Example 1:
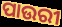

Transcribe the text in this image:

ପାଉରୀ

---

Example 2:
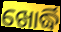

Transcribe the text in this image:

ଖୋର୍ଦ୍ଧି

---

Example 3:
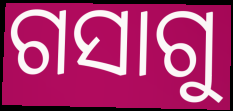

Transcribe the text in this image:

ଗସାଗୁ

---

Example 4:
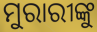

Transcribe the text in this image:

ମୁରାରୀଙ୍କୁ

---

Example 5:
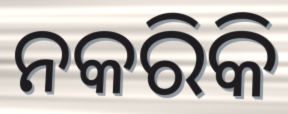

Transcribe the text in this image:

ନକରିକି